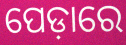
ପେଡ଼ାରେ